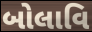
બોલાવિ